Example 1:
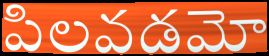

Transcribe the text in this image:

పిలవడమో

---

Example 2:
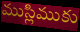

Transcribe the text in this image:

ముస్లిముకు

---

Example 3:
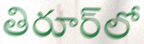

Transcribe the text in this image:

తిరూర్‌లో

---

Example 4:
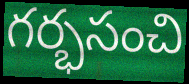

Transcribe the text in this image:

గర్భసంచి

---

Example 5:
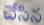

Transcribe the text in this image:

చేసిన